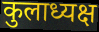
कुलाध्यक्ष